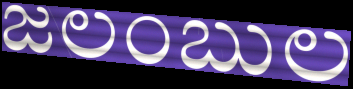
జలంబుల